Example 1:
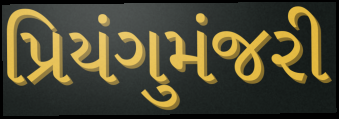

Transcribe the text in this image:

પ્રિયંગુમંજરી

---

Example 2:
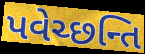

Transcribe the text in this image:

પવેચ્છન્તિ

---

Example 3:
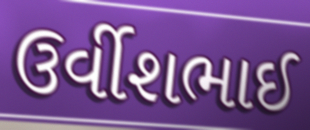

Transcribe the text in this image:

ઉર્વીશભાઈ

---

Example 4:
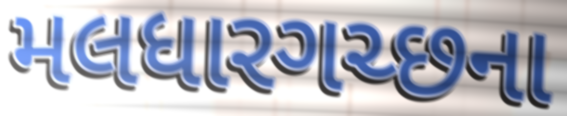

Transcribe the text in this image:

મલધારગચ્છના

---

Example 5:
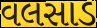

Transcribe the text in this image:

વલસાડ